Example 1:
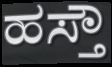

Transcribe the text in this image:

ಹಸ್ತೌ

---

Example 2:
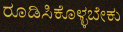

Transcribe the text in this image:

ರೂಡಿಸಿಕೊಳ್ಳಬೇಕು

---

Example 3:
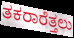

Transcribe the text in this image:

ತಕರಾರೆತ್ತಲು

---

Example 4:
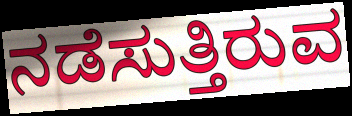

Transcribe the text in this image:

ನಡೆಸುತ್ತಿರುವ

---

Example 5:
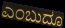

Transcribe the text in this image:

ಎಂಬುದೂ